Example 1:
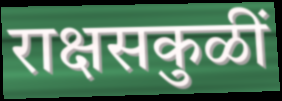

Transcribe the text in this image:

राक्षसकुळीं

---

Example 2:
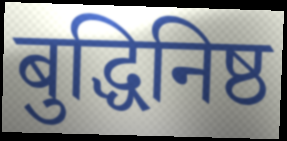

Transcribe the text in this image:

बुद्धिनिष्ठ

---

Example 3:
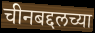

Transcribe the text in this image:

चीनबद्दलच्या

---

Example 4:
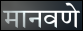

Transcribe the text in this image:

मानवणे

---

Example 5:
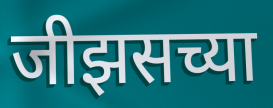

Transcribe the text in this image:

जीझसच्या